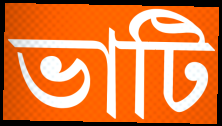
ভাটি